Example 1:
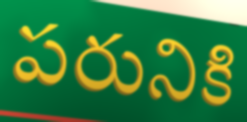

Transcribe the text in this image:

పరునికి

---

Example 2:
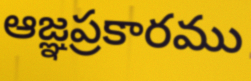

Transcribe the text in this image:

ఆజ్ఞప్రకారము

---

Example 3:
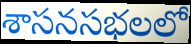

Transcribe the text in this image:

శాసనసభలలో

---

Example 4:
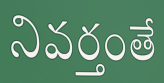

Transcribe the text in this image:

నివర్తంతే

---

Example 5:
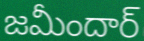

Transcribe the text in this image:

జమీందార్